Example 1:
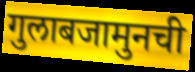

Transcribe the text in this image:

गुलाबजामुनची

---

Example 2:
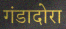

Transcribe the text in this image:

गंडादोरा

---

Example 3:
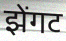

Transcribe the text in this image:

झेंगट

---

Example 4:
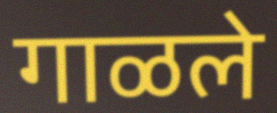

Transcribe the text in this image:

गाळले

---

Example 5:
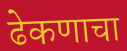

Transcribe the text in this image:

ढेकणाचा